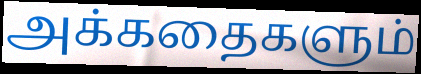
அக்கதைகளும்